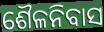
ଶୈଳନିବାସ